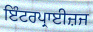
ਇੰਟਰਪ੍ਰਾਈਜ਼ਜ